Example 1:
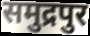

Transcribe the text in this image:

समुद्रपुर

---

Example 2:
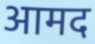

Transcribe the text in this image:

आमद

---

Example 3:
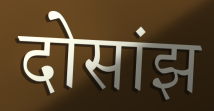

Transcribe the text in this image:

दोसांझ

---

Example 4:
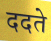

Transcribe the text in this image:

ददते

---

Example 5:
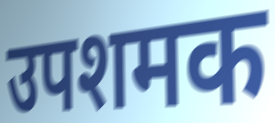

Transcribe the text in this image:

उपशमक